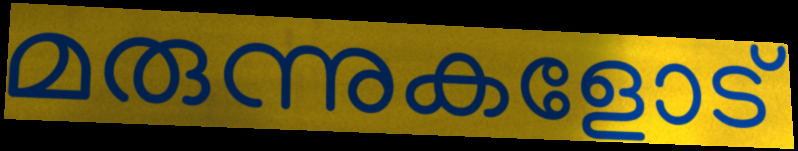
മരുന്നുകളോട്